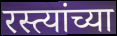
रस्त्यांच्या